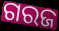
ଗରଜ